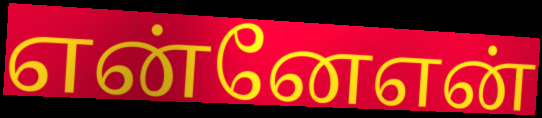
என்னேஎன்